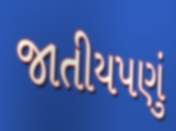
જાતીયપણું